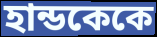
হান্ডকেকে